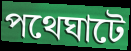
পথেঘাটে